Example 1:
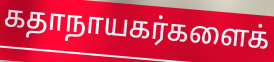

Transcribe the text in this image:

கதாநாயகர்களைக்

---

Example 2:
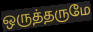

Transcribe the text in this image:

ஒருத்தருமே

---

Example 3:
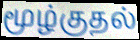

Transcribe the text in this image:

மூழ்குதல்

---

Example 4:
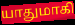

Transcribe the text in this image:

யாதுமாகி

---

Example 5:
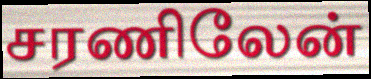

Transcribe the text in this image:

சரணிலேன்